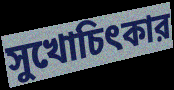
সুখোচিৎকার